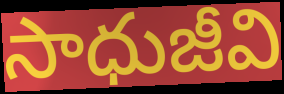
సాధుజీవి